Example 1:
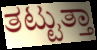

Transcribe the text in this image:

ತಟ್ಟುತ್ತಾ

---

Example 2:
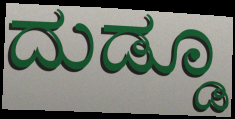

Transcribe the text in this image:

ದುಡ್ಡೂ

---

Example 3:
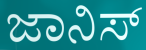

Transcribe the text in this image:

ಜಾನಿಸ್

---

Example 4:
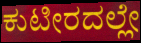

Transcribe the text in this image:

ಕುಟೀರದಲ್ಲೇ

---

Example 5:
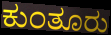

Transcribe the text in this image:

ಕುಂತೂರು